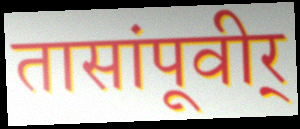
तासांपूवीर्